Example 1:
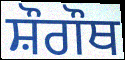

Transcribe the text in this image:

ਸ਼ੌਗੌਥ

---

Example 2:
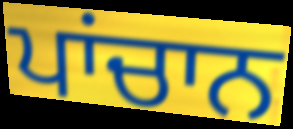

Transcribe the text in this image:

ਪਾਂਚਾਨ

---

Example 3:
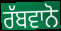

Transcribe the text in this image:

ਰੱਬਵਾਨੋ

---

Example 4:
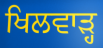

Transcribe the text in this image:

ਖਿਲਵਾੜ੍ਹ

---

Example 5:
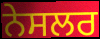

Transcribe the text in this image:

ਨੇਸਲਰ